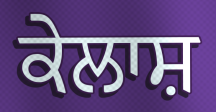
ਕੇਲਾਸ਼